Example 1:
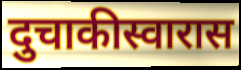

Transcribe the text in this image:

दुचाकीस्वारास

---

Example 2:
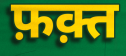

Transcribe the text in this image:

फ़क़्त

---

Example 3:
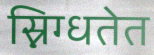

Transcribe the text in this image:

स्निग्धतेत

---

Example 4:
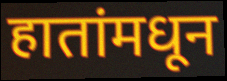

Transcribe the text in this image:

हातांमधून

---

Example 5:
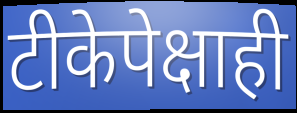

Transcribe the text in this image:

टीकेपेक्षाही